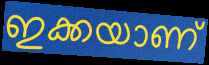
ഇക്കയാണ്